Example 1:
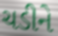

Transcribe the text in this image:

ચડીને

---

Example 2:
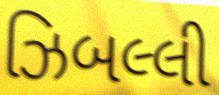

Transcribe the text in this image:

ઝિબલ્લી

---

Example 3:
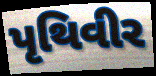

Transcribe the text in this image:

પૃથિવીર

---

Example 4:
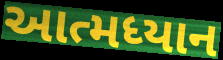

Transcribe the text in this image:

આત્મધ્યાન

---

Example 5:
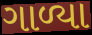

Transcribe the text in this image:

ગાળ્યા